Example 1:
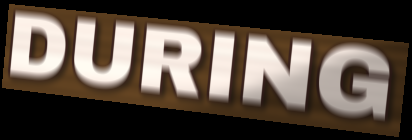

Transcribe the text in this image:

DURING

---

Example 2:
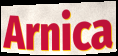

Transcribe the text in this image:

Arnica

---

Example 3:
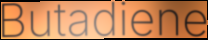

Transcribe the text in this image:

Butadiene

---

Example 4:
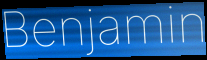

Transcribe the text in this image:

Benjamin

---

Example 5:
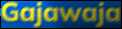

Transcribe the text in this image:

Gajawaja